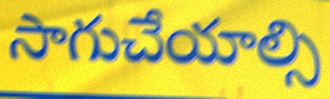
సాగుచేయాల్సి